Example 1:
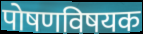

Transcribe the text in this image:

पोषणविषयक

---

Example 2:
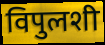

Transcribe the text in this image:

विपुलशी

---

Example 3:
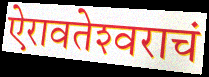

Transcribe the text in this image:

ऐरावतेश्वराचं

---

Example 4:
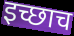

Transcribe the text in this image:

इच्छाच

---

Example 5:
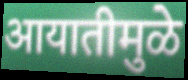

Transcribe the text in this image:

आयातीमुळे